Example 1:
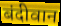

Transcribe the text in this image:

बंदीवान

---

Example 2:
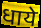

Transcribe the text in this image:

धाये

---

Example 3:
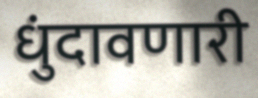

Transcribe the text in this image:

धुंदावणारी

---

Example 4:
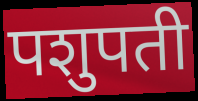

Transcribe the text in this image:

पशुपती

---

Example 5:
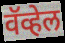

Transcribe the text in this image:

वॅव्हेल